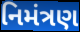
નિમંત્રણ